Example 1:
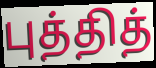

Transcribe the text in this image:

புத்தித்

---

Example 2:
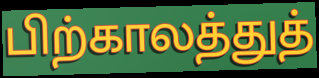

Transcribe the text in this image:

பிற்காலத்துத்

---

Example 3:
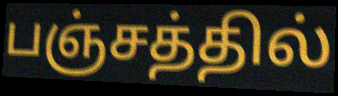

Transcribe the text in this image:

பஞ்சத்தில்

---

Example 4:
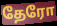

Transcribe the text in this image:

தேரோ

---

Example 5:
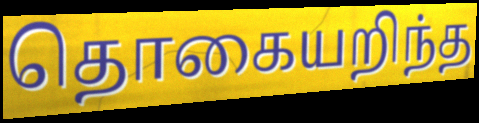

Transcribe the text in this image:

தொகையறிந்த